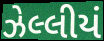
ઝેલ્લીયં